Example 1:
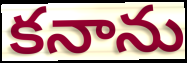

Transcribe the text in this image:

కనాను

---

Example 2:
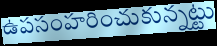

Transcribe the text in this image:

ఉపసంహరించుకున్నట్టు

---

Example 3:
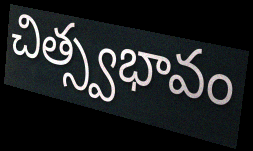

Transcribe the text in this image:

చిత్స్వభావం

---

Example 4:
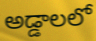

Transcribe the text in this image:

అడ్డాలలో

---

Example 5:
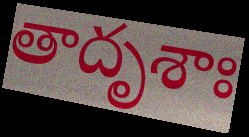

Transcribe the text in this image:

తాదృశాః